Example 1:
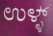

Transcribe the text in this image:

ಉಳ್ಳ್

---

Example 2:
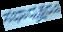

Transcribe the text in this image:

ಸಭಾಧ್ಯಕ್ಷರೂ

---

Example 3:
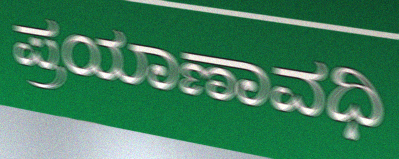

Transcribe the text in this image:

ಪ್ರಯಾಣಾವಧಿ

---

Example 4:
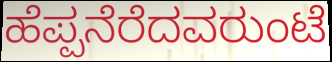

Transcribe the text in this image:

ಹೆಪ್ಪನೆರೆದವರುಂಟೆ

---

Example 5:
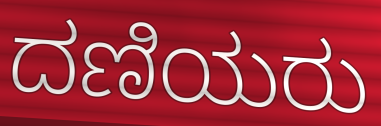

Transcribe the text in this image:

ದಣಿಯರು